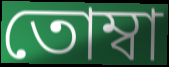
তোম্বা